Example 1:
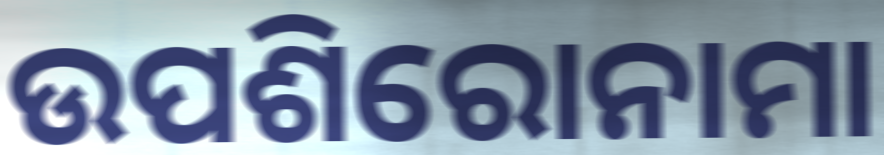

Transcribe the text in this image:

ଉପଶିରୋନାମା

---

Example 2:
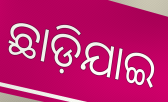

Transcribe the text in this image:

ଛାଡ଼ିଯାଇ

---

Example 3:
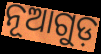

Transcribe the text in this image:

ନୂଆଗୁଡ଼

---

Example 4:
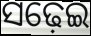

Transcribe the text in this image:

ସଢ଼େଇ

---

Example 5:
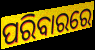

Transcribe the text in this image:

ପରିବାରରେ